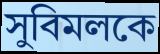
সুবিমলকে